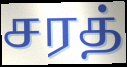
சரத்